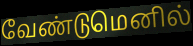
வேண்டுமெனில்